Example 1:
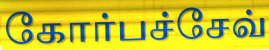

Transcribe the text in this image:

கோர்பச்சேவ்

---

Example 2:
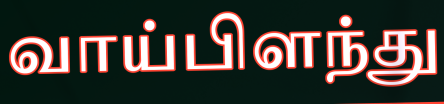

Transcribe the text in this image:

வாய்பிளந்து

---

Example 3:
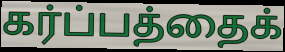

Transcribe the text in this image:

கர்ப்பத்தைக்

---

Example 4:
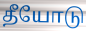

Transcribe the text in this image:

தீயோடு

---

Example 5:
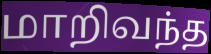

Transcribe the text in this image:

மாறிவந்த